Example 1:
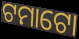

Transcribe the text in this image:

ଟମାଟୋ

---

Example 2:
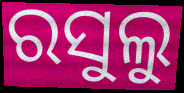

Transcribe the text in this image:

ରସୁଲୁ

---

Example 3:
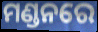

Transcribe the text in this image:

ମଣ୍ଡନରେ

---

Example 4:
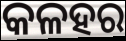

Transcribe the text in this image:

କଳହର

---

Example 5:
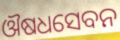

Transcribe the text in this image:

ଔଷଧସେବନ